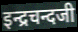
इन्द्रचन्दजी